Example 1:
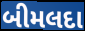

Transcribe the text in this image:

બીમલદા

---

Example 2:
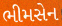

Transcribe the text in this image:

ભીમસેન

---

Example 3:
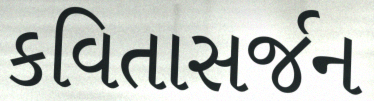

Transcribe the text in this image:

કવિતાસર્જન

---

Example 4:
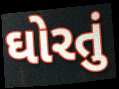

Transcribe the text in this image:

ઘોરતું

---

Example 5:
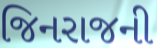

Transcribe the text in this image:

જિનરાજની